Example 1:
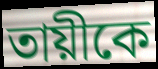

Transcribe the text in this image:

তায়ীকে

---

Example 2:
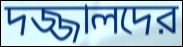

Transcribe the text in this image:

দজ্জালদের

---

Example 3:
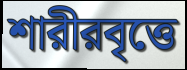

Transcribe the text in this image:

শারীরবৃত্তে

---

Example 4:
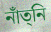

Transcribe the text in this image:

নাঁত্‌নি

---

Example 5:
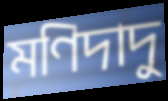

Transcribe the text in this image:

মণিদাদু